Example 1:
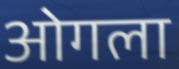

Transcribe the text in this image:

ओगला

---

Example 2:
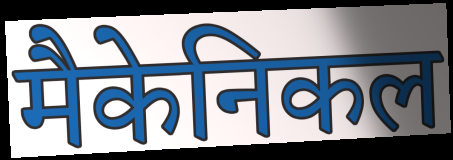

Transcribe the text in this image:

मैकेनिकल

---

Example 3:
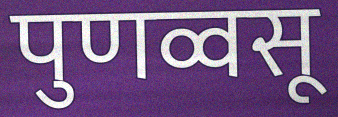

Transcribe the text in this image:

पुणव्वसू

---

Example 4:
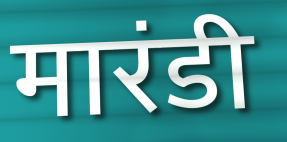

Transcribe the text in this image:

मारंडी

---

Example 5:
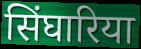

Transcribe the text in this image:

सिंघारिया